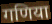
गणिया